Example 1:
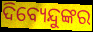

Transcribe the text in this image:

ଦିବ୍ୟେନ୍ଦୁଙ୍କର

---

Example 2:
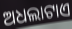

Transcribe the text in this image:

ଅଧଲାଟାଏ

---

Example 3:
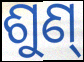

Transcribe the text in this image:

ଶୁଣ୍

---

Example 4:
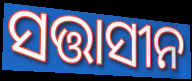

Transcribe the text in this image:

ସତ୍ତାସୀନ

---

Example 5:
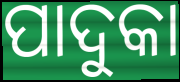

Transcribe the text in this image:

ପାଦୁକା